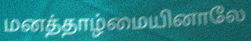
மனத்தாழ்மையினாலே